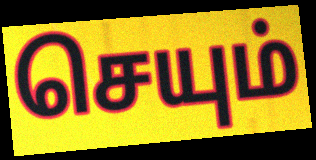
செயும்